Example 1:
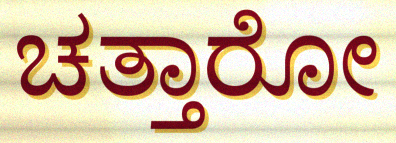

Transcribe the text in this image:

ಚತ್ತಾರೋ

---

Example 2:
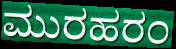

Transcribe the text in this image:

ಮುರಹರಂ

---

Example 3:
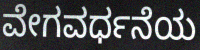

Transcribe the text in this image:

ವೇಗವರ್ಧನೆಯ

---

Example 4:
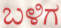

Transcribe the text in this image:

ಬಳಿಗ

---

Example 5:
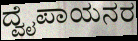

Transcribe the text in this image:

ದ್ವೈಪಾಯನರ